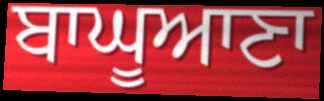
ਬਾਘੂਆਣਾ